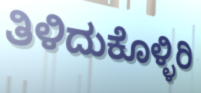
ತಿಳಿದುಕೊಳ್ಳಿರಿ